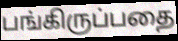
பங்கிருப்பதை